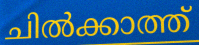
ചിൽക്കാത്ത്